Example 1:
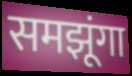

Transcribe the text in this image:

समझूंगा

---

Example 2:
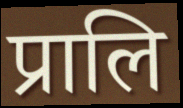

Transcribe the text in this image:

प्रालि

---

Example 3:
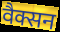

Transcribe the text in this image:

वैक्सन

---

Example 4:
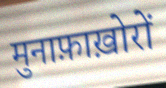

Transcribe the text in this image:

मुनाफ़ाख़ोरों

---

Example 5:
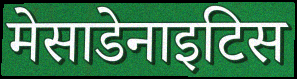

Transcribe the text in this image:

मेसाडेनाइटिस